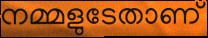
നമ്മളുടേതാണ്